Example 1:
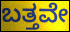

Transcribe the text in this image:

ಬತ್ತವೇ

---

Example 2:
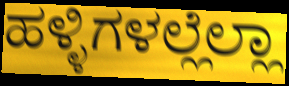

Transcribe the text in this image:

ಹಳ್ಳಿಗಳಲ್ಲೆಲ್ಲಾ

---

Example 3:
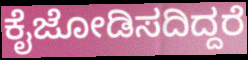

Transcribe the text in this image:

ಕೈಜೋಡಿಸದಿದ್ದರೆ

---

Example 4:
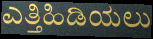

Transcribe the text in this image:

ಎತ್ತಿಹಿಡಿಯಲು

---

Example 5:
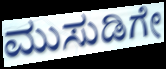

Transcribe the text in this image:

ಮುಸುಡಿಗೇ